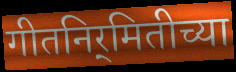
गीतनिर्मितीच्या